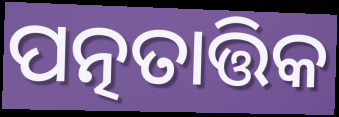
ପତ୍ନତାତ୍ତିକ